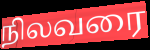
நிலவரை